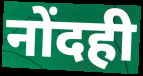
नोंदही